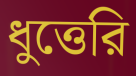
ধুত্তেরি